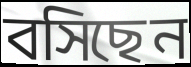
বসিছেন